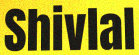
Shivlal